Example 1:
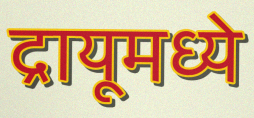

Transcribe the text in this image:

द्रायूमध्ये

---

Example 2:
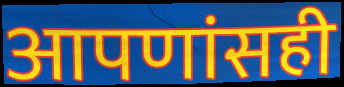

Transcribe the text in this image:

आपणांसही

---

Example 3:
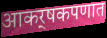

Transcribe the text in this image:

आकर्षकपणात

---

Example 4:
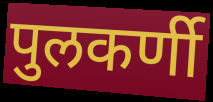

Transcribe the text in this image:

पुलकर्णी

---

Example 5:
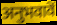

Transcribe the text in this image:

अनुभवावें